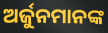
ଅର୍ଜୁନମାନଙ୍କ